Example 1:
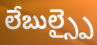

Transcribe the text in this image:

లేబుల్స్పై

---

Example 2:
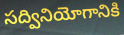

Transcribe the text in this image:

సద్వినియోగానికి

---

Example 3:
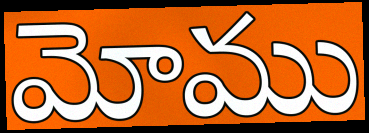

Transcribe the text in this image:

మోము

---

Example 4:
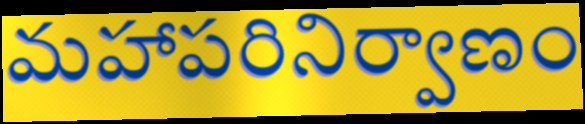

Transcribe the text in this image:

మహాపరినిర్వాణం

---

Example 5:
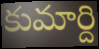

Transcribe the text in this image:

కుమార్ది